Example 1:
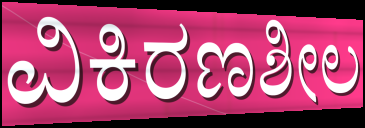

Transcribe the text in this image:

ವಿಕಿರಣಶೀಲ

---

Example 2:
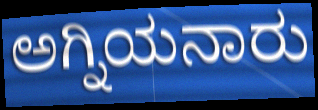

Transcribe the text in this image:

ಅಗ್ನಿಯನಾರು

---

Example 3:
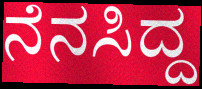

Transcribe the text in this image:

ನೆನಸಿದ್ದ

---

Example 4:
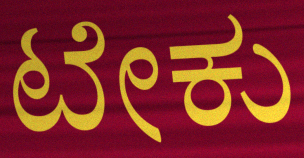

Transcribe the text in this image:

ಟೇಕು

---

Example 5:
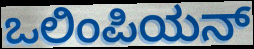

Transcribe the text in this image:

ಒಲಿಂಪಿಯನ್